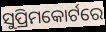
ସୁପ୍ରିମକୋର୍ଟରେ